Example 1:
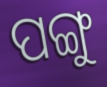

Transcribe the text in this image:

ପଙ୍ଗୁ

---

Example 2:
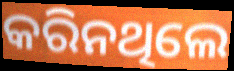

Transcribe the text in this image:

କରିନଥିଲେ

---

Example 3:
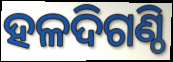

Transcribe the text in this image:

ହଳଦିଗଣ୍ଠି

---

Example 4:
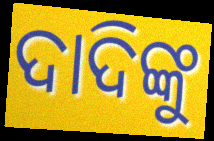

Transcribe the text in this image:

ଦାଦିଙ୍କୁ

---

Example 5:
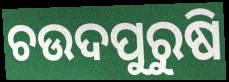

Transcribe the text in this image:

ଚଉଦପୁରୁଷି